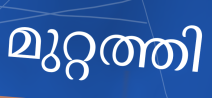
മുറ്റത്തി